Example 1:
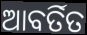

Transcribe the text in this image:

ଆବର୍ତିତ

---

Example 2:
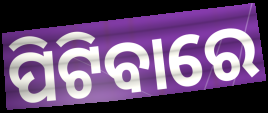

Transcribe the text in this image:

ପିଟିବାରେ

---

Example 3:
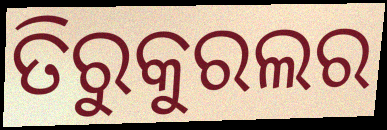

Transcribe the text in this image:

ତିରୁକୁରଲର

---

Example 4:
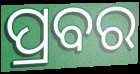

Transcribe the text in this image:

ପ୍ରବର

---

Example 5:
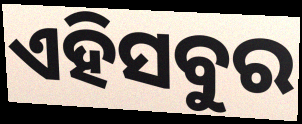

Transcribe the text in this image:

ଏହିସବୁର